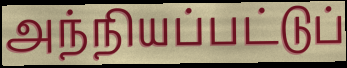
அந்நியப்பட்டுப்